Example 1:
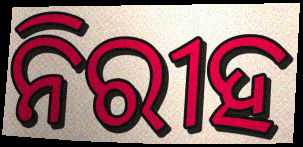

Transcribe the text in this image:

ନିରୀହ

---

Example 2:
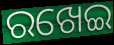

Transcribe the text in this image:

ରଖେଇ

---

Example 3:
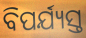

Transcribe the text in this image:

ବିପର୍ଯ୍ୟସ୍ତ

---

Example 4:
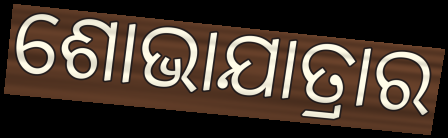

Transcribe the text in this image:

ଶୋଭାଯାତ୍ରାର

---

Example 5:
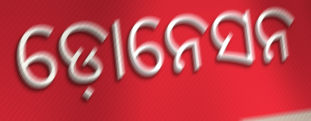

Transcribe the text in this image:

ଡ଼ୋନେସନ